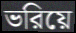
ভরিয়ে